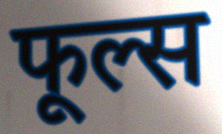
फूल्स